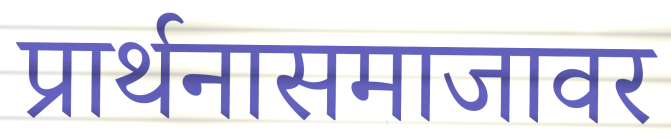
प्रार्थनासमाजावर